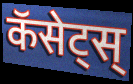
कॅसेट्स्